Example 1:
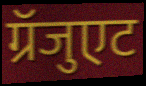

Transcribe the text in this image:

ग्रॅजुएट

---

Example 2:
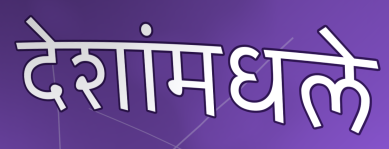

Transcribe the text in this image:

देशांमधले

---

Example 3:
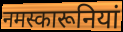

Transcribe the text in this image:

नमस्कारूनियां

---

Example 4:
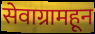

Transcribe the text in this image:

सेवाग्रामहून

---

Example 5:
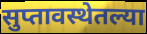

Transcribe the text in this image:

सुप्तावस्थेतल्या